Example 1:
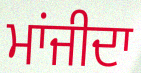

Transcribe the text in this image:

ਮਾਂਜੀਦਾ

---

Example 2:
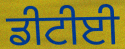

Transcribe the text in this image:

ਡੀਟੀਈ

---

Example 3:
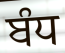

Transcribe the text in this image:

ਬੰਧ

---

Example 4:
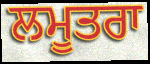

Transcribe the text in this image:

ਲਮੂਤਰਾ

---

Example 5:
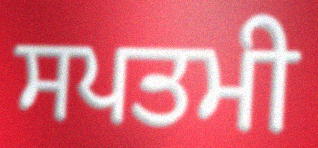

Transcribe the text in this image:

ਸਪਤਮੀ